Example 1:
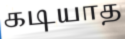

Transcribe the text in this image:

கடியாத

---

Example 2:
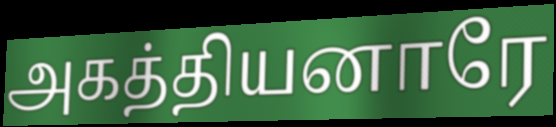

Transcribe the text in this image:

அகத்தியனாரே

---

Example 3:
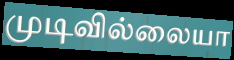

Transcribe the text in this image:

முடிவில்லையா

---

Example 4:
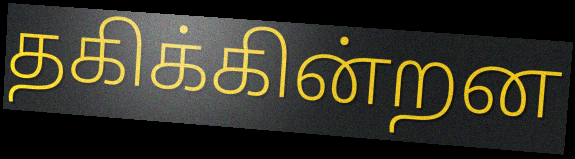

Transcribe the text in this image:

தகிக்கின்றன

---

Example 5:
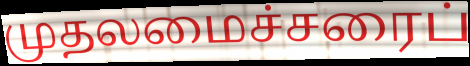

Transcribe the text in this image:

முதலமைச்சரைப்